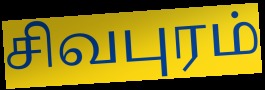
சிவபுரம்